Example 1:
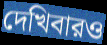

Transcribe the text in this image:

দেখিবারও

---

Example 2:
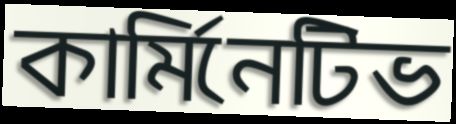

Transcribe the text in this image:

কার্মিনেটিভ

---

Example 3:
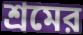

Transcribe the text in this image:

শ্রমের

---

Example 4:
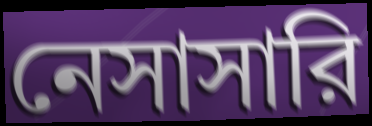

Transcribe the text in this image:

নেসাসারি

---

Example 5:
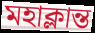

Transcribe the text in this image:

মহাক্লান্ত